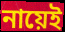
নায়েই